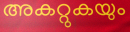
അകറ്റുകയും